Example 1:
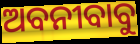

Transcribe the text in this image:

ଅବନୀବାବୁ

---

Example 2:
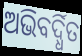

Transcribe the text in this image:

ଅଭିବର୍ଦ୍ଧିତ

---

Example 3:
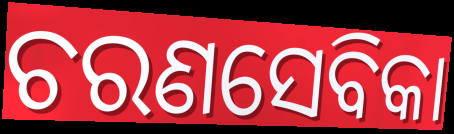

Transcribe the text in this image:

ଚରଣସେବିକା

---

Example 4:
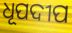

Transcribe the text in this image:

ଧୂପଦୀପ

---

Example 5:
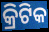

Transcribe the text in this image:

କ୍ରିଟିକ